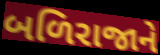
બળિરાજાને